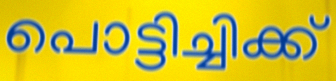
പൊട്ടിച്ചിക്ക്